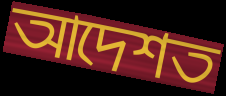
আদেশত